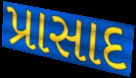
પ્રાસાદ